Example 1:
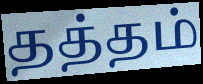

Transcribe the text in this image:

தத்தம்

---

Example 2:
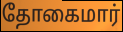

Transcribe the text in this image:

தோகைமார்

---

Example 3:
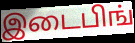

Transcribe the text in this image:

இடைபிங்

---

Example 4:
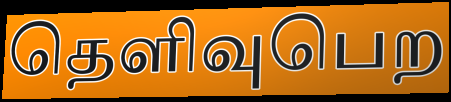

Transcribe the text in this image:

தெளிவுபெற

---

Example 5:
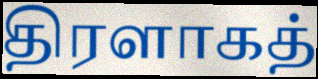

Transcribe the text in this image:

திரளாகத்